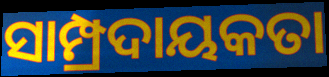
ସାମ୍ପ୍ରଦାୟକତା